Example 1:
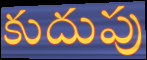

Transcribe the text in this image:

కుదుపు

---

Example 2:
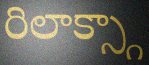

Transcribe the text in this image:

రిలాక్స్గా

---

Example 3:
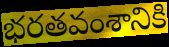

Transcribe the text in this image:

భరతవంశానికి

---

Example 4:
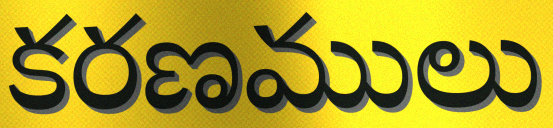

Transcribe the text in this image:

కరణములు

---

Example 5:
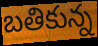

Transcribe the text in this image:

బతికున్న